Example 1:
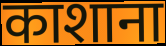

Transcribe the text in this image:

काशाना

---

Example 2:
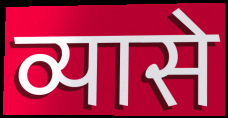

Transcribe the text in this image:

व्यासे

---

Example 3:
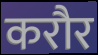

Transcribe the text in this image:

करौर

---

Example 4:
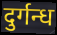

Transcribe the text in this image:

दुर्गन्ध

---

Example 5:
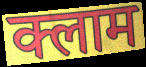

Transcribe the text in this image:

क्लाम